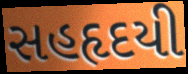
સહહૃદયી